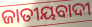
ଜାତୀୟବାଦୀ